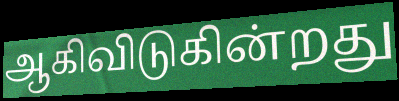
ஆகிவிடுகின்றது